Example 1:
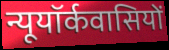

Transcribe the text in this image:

न्यूयॉर्कवासियों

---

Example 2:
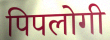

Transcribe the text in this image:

पिपलोगी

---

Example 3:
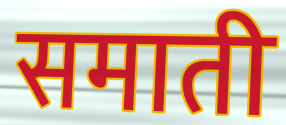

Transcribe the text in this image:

समाती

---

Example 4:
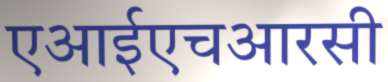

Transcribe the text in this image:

एआईएचआरसी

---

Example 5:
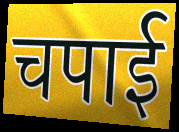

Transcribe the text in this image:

चपाई